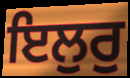
ਇਲੁਰੁ